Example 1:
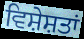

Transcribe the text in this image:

ਵਿਸ਼ੇਸ਼ਤਾਂ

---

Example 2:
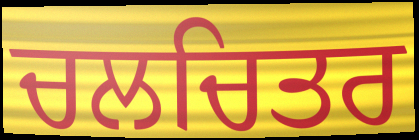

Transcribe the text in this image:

ਚਲਚਿਤਰ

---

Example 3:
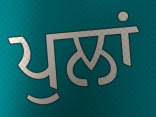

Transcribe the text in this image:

ਪੁਲਾਂ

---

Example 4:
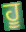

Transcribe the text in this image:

ਹੂ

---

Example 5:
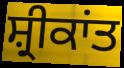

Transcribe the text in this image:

ਸ਼੍ਰੀਕਾਂਤ